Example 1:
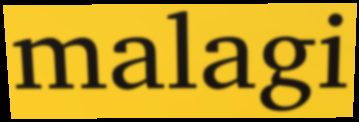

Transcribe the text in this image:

malagi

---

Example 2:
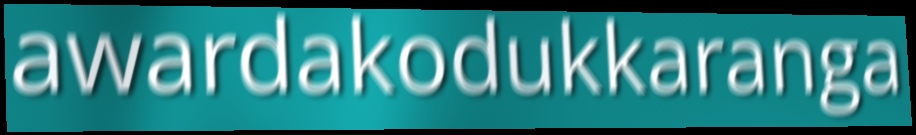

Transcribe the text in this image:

awardakodukkaranga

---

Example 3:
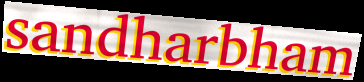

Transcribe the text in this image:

sandharbham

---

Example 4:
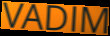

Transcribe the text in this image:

VADIM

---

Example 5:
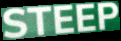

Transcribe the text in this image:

STEEP